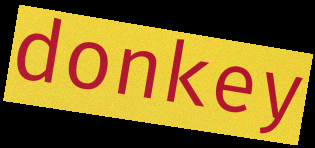
donkey